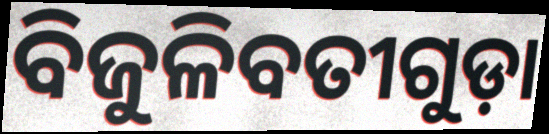
ବିଜୁଳିବତୀଗୁଡ଼ା